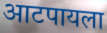
आटपायला